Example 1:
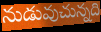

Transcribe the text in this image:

నుడువుచున్నది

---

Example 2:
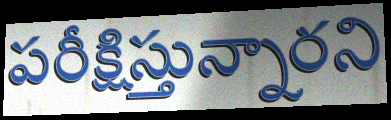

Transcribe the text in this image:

పరీక్షిస్తున్నారని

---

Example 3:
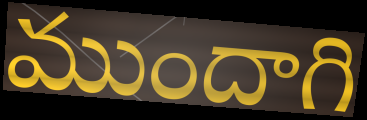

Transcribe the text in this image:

ముందాగి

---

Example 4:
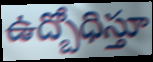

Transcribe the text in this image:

ఉద్బోధిస్తూ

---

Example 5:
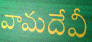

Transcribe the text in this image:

వామదేవీ